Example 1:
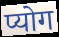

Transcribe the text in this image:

प्योग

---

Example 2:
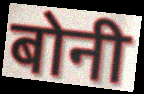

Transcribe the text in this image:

बोनी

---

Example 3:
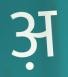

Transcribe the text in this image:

अ़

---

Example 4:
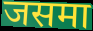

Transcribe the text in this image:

जसमा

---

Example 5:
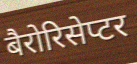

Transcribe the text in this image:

बैरोरिसेप्टर